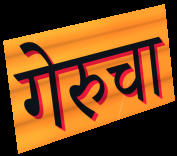
गेरुचा